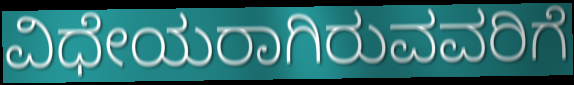
ವಿಧೇಯರಾಗಿರುವವರಿಗೆ